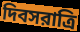
দিবসরাত্রি